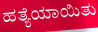
ಹತ್ಯೆಯಾಯಿತು